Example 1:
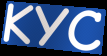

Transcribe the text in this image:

KYC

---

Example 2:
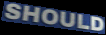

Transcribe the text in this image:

SHOULD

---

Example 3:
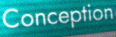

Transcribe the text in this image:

Conception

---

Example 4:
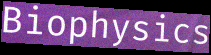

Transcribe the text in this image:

Biophysics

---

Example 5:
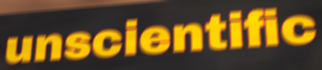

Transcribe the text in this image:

unscientific